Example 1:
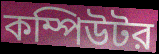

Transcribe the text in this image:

কম্পিউটর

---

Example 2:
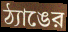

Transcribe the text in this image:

ঠ্যাঙের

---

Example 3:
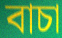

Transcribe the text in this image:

বাচা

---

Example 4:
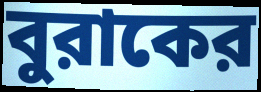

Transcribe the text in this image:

বুরাকের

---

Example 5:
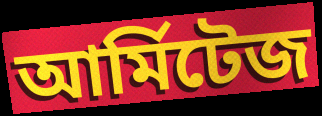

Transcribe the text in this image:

আর্মিটেজ